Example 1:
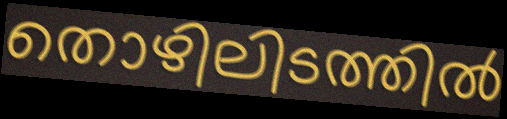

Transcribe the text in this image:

തൊഴിലിടത്തിൽ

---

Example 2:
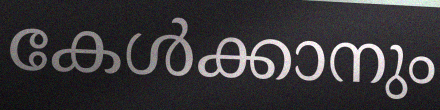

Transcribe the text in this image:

കേൾക്കാനും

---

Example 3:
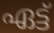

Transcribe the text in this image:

ഏട്ട്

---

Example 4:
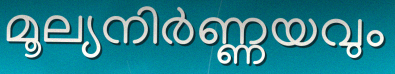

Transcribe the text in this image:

മൂല്യനിർണ്ണയവും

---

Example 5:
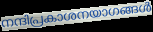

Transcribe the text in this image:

നന്ദിപ്രകാശനയാഗങ്ങൾ